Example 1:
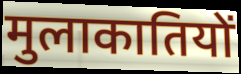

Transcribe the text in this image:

मुलाकातियों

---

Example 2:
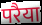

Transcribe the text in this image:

परैया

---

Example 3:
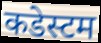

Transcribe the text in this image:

कडेस्टम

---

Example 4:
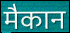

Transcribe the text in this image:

मैकान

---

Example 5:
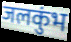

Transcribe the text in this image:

जलकुंभ